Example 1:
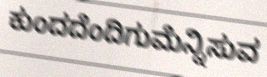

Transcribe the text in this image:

ಕುಂದದೆಂದಿಗುಮೆನ್ನಿಸುವ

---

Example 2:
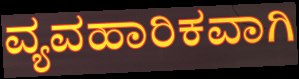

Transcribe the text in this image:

ವ್ಯವಹಾರಿಕವಾಗಿ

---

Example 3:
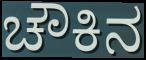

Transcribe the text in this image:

ಚೌಕಿನ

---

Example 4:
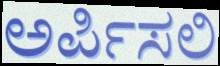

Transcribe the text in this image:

ಅರ್ಪಿಸಲಿ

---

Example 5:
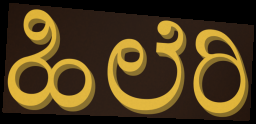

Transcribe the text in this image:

ಹಿಲೆರಿ